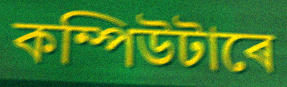
কম্পিউটাৰে